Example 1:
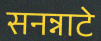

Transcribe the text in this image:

सनन्नाटे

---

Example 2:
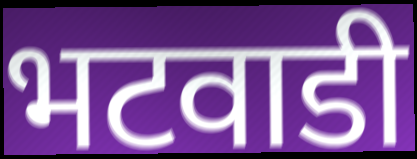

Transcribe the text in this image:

भटवाडी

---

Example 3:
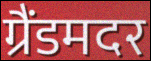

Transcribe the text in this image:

ग्रैंडमदर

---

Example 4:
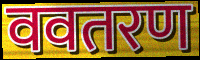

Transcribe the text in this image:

ववतरण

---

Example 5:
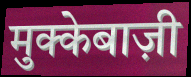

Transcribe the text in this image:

मुक्केबाज़ी